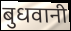
बुधवानी